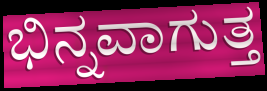
ಭಿನ್ನವಾಗುತ್ತ